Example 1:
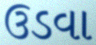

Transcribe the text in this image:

ઉડવા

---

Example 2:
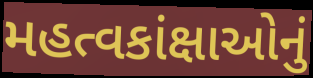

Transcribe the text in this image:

મહત્વકાંક્ષાઓનું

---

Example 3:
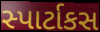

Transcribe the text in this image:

સ્પાર્ટાકસ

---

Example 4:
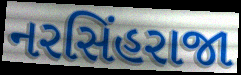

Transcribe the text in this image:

નરસિંહરાજા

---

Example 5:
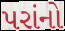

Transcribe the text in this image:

પરાંનો